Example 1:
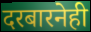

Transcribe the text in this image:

दरबारनेही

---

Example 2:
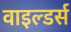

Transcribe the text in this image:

वाइल्डर्स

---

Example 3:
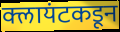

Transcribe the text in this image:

क्लायंटकडून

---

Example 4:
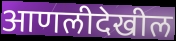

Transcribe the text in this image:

आणलीदेखील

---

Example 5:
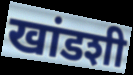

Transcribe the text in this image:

खांडशी